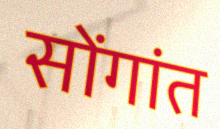
सोंगांत